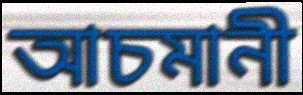
আচমানী